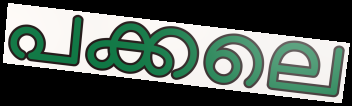
പക്കലെ